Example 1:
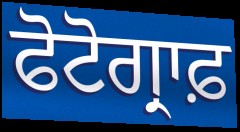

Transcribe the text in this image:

ਫੋਟੋਗ੍ਰਾਫ਼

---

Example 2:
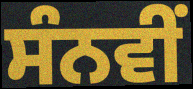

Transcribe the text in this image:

ਸੰਨਵੀਂ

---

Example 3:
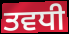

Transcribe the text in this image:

ਤਵਧੀ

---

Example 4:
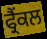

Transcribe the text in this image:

ਫ੍ਰੈਂਕਲ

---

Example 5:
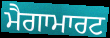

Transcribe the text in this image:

ਮੈਗਾਮਾਰਟ